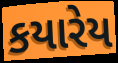
કયારેય